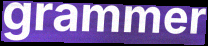
grammer